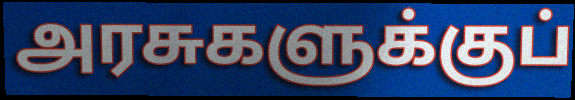
அரசுகளுக்குப்